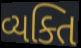
વ્યક્તિ